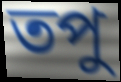
তপু